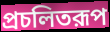
প্রচলিতরূপ